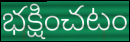
భక్షించటం